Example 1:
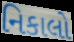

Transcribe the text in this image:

નિકાલો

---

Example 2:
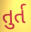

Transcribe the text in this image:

તુર્ત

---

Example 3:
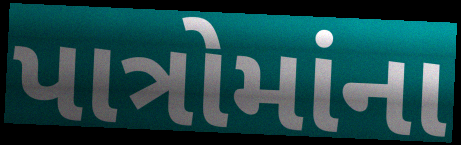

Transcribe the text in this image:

પાત્રોમાંના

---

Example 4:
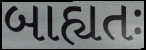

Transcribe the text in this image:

બાહ્યતઃ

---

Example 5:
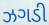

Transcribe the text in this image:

ઝગડી